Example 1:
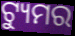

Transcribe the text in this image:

ଟ୍ୟୁମର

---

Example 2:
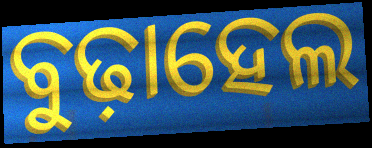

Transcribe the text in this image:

ବୁଢ଼ାହେଲ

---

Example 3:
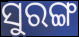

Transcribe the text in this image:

ସୁରଙ୍ଗ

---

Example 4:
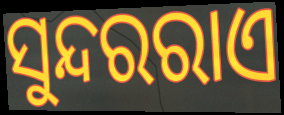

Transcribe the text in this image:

ସୁନ୍ଦରରାଏ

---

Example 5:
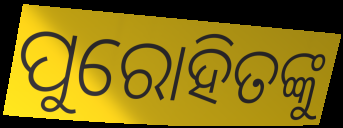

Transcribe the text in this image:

ପୁରୋହିତଙ୍କୁ